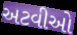
અટવીઓ